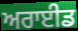
ਅਰਾਈਡ